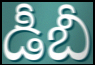
డీబీ